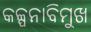
କଳ୍ପନାବିମୁଖ